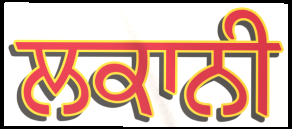
ਲਕਾਨੀ